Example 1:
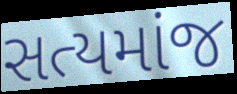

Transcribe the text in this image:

સત્યમાંજ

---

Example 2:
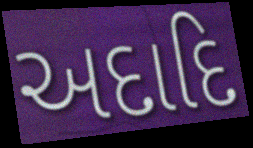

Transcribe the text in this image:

અદાદિ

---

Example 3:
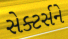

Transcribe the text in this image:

સેક્ટર્સને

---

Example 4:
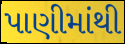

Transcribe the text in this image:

પાણીમાંથી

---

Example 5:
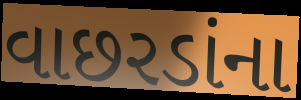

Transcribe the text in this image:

વાછરડાંના